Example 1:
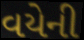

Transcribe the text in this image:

વયેની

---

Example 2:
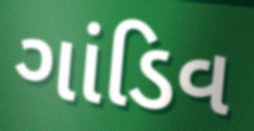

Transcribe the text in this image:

ગાંડિવ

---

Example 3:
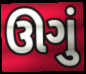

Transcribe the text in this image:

ઊગું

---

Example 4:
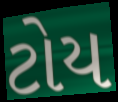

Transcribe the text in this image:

ટોય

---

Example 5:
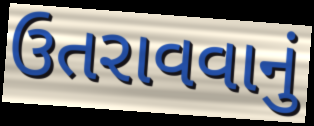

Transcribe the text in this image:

ઉતરાવવાનું